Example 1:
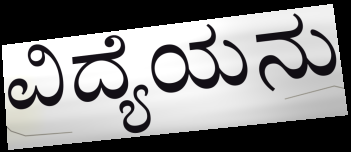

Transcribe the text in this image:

ವಿದ್ಯೆಯನು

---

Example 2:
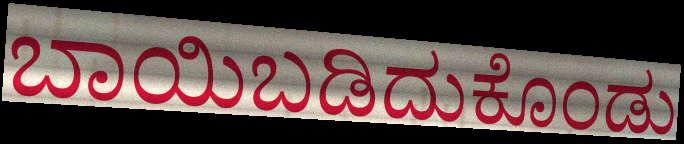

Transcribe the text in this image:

ಬಾಯಿಬಡಿದುಕೊಂಡು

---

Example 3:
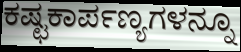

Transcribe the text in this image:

ಕಷ್ಟಕಾರ್ಪಣ್ಯಗಳನ್ನೂ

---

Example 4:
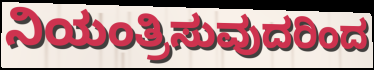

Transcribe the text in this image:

ನಿಯಂತ್ರಿಸುವುದರಿಂದ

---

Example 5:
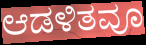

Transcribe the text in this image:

ಆಡಳಿತವೂ